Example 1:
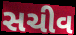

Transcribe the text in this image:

સચીવ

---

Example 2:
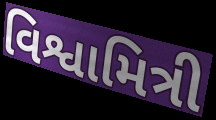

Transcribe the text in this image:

વિશ્વામિત્રી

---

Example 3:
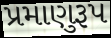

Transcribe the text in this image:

પ્રમાણુરૂપ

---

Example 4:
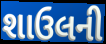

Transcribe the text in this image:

શાઉલની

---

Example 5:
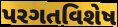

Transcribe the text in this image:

પરગતવિશેષ